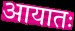
आयातः